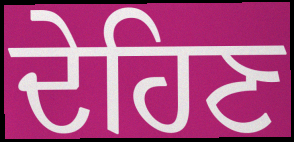
ਦੇਹਿਣ